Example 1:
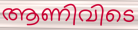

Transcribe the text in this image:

ആണിവിടെ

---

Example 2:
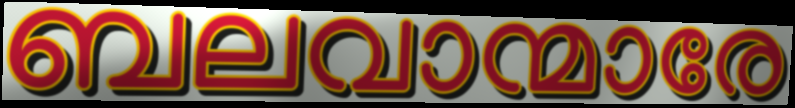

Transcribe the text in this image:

ബലവാന്മാരേ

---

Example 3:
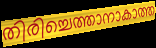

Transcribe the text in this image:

തിരിച്ചെത്താനാകാത്ത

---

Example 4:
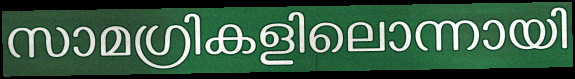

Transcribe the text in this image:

സാമഗ്രികളിലൊന്നായി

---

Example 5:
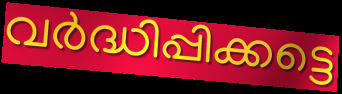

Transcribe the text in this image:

വർദ്ധിപ്പിക്കട്ടെ